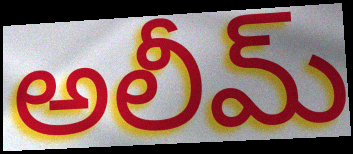
అలీమ్